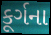
કૂર્ગના